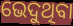
ଭେଦୁଥିବା